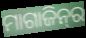
ମାଗାଜିନ୍‍ର